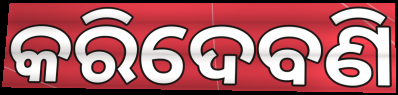
କରିଦେବଣି